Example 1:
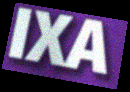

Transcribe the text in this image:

IXA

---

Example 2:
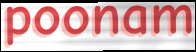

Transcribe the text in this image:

poonam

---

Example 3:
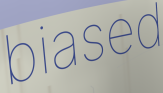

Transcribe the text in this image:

biased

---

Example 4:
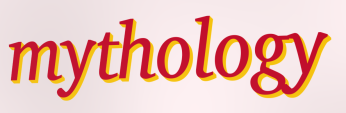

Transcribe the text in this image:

mythology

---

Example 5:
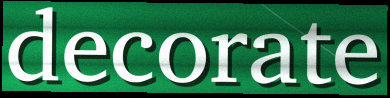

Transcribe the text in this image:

decorate